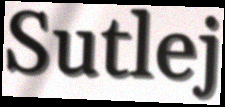
Sutlej